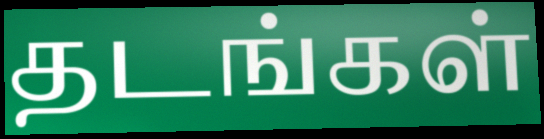
தடங்கள்